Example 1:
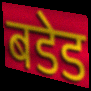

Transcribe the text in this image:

बडेड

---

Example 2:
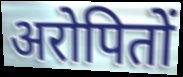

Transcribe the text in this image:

अरोपितों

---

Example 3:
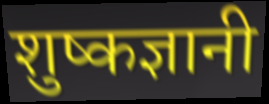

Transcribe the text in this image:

शुष्कज्ञानी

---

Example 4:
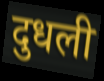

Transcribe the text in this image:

दुधली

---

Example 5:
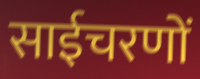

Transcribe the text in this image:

साईचरणों